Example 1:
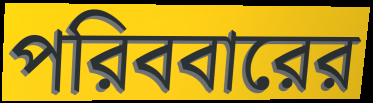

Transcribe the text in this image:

পরিববারের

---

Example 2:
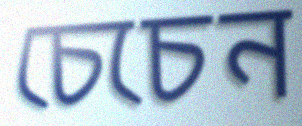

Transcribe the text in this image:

চেচেন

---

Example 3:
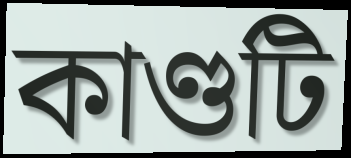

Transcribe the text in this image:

কাণ্ডটি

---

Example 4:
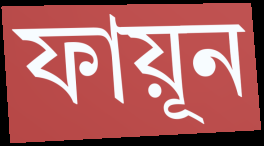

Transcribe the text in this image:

ফায়ূন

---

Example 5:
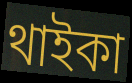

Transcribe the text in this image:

থাইকা